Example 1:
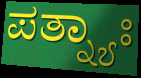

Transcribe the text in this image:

ಪತ್ನ್ಯಾಃ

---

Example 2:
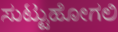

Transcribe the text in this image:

ಸುಟ್ಟುಹೋಗಲಿ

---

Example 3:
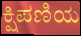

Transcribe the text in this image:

ಕ್ಷಿಪಣಿಯ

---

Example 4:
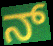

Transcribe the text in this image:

ನ್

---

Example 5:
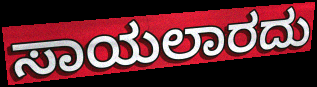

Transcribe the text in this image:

ಸಾಯಲಾರದು